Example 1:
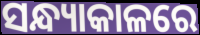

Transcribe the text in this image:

ସନ୍ଧ୍ୟାକାଳରେ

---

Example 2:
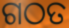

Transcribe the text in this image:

ଗଠତ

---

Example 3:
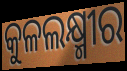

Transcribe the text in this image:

କୁଳଲକ୍ଷ୍ମୀର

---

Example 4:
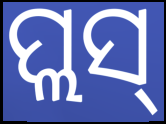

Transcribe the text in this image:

ପ୍ଲସ୍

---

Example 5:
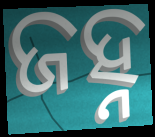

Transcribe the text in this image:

ଜହ୍ନ